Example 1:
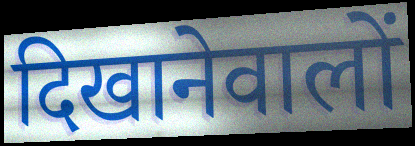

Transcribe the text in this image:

दिखानेवालों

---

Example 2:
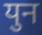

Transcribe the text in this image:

युन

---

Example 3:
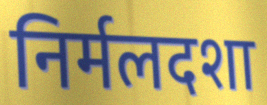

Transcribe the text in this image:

निर्मलदशा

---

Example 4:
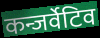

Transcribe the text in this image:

कन्जर्वेटिव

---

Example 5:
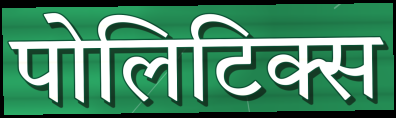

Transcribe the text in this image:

पोलिटिक्स